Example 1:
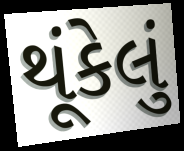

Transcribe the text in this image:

થૂંકેલું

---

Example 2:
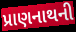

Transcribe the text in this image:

પ્રાણનાથની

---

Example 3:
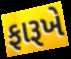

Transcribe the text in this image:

ફારૂખે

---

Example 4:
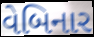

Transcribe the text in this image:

વેબિનાર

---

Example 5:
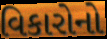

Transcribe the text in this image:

વિકારોનો